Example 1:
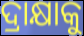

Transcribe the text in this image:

ଦ୍ରାକ୍ଷାକୁ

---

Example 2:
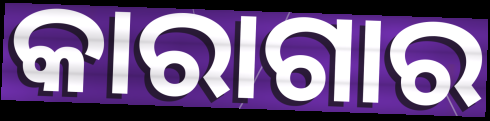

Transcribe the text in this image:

କାରାଗାର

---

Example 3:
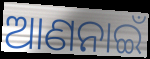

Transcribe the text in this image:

ଆଣନାଇଁ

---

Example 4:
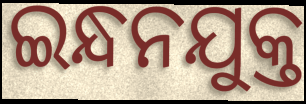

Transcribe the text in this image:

ଇନ୍ଧନଯୁକ୍ତ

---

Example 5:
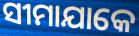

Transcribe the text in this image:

ସୀମାଯାକେ